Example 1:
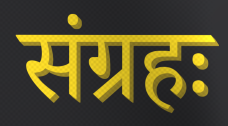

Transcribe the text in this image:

संग्रहः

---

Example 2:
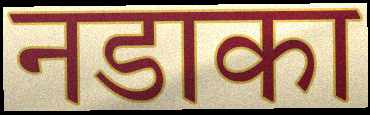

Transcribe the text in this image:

नडाका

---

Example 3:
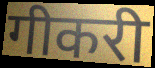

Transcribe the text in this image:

गीकरी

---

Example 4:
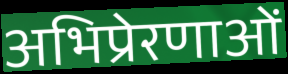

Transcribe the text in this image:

अभिप्रेरणाओं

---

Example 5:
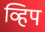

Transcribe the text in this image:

व्हिप